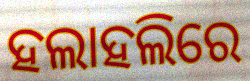
ହଲାହଲିରେ